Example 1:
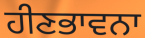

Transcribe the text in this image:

ਹੀਣਭਾਵਨਾ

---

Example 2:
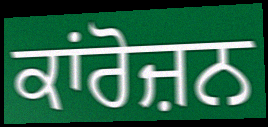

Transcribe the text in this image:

ਕਾਂਰੋਜ਼ਨ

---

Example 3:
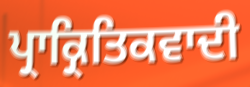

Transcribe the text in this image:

ਪ੍ਰਾਕ੍ਰਿਤਿਕਵਾਦੀ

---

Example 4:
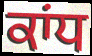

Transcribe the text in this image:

ਕਾਂਧ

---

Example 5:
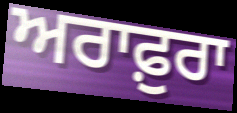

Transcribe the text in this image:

ਅਰਾਫ਼ੁਰਾ